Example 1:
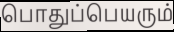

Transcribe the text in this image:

பொதுப்பெயரும்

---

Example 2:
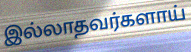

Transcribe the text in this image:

இல்லாதவர்களாய்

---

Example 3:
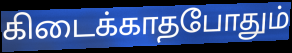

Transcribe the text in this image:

கிடைக்காதபோதும்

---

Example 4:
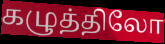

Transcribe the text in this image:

கழுத்திலோ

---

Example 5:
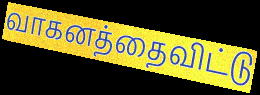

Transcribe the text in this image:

வாகனத்தைவிட்டு